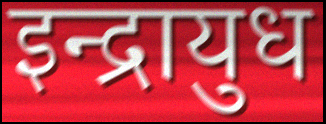
इन्द्रायुध